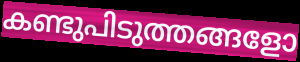
കണ്ടുപിടുത്തങ്ങളോ